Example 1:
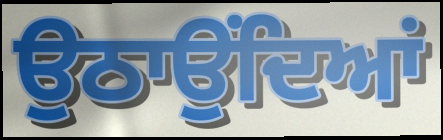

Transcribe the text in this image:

ਉਠਾਉਂਦਿਆਂ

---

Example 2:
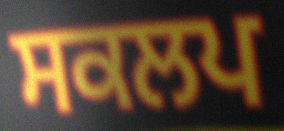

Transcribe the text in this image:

ਸਕਲਪ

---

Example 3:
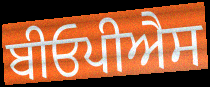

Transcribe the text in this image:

ਬੀਓਪੀਐਸ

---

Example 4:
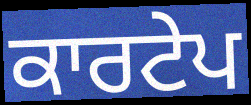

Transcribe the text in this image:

ਕਾਰਟੇਪ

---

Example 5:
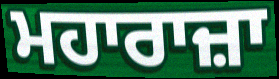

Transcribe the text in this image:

ਮਹਾਰਾਜ਼ਾ